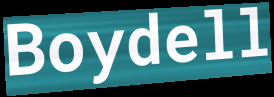
Boydell